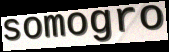
somogro